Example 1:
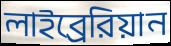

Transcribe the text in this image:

লাইব্রেরিয়ান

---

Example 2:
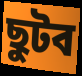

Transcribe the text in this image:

ছুটব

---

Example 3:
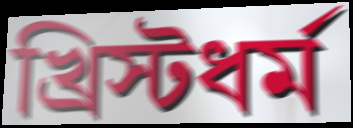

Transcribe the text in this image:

খ্রিস্টধর্ম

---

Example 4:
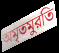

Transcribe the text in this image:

অমৃতমুরতি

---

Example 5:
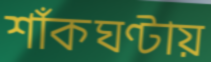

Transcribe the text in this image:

শাঁকঘণ্টায়